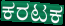
ಕರಟಕ